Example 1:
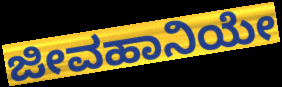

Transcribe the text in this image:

ಜೀವಹಾನಿಯೇ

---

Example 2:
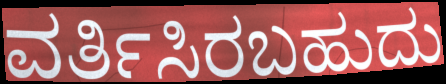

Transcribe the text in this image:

ವರ್ತಿಸಿರಬಹುದು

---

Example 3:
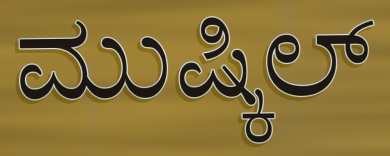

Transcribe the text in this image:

ಮುಷ್ಕಿಲ್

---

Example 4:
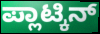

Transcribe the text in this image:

ಪ್ಲಾಟ್ಕಿನ್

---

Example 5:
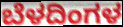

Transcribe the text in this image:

ಬೆಳದಿಂಗಳ